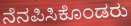
ನೆನಪಿಸಿಕೊಂಡರು